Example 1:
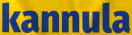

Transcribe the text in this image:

kannula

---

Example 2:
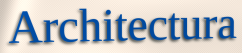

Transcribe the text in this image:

Architectura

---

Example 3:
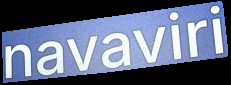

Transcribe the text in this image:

navaviri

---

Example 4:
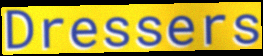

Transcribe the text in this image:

Dressers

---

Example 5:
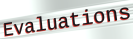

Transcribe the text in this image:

Evaluations